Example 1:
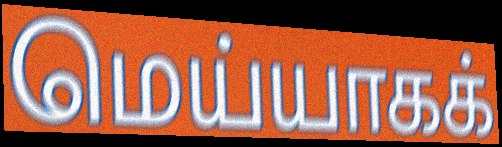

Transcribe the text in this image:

மெய்யாகக்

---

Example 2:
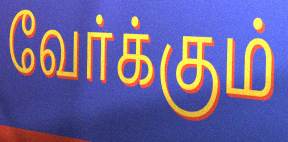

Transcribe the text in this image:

வேர்க்கும்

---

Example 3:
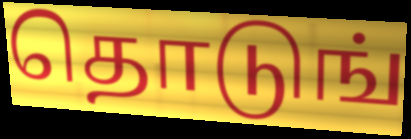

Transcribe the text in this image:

தொடுங்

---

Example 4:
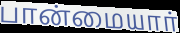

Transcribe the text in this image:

பான்மையார்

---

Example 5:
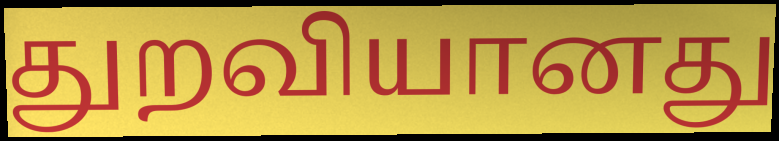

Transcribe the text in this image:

துறவியானது